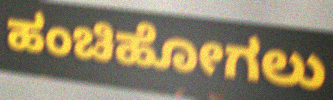
ಹಂಚಿಹೋಗಲು